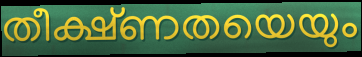
തീക്ഷ്ണതയെയും